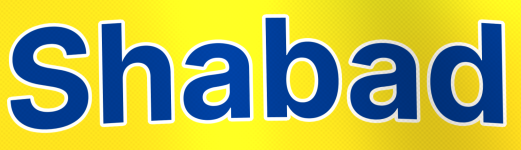
Shabad